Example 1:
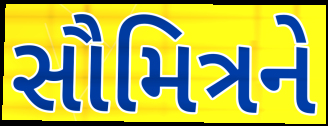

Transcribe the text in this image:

સૌમિત્રને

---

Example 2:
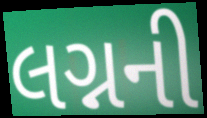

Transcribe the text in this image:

લગ્નની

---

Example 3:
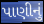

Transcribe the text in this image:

પાણીનું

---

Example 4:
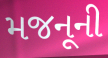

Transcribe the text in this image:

મજનૂની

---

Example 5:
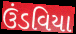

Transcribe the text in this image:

ઉંડવિયા